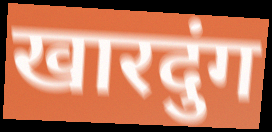
खारदुंग